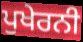
ਪੁਖੇਰਨੀ